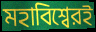
মহাবিশ্বেরই